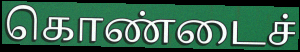
கொண்டைச்